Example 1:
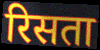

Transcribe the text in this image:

रिसता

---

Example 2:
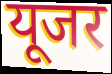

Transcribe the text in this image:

यूजर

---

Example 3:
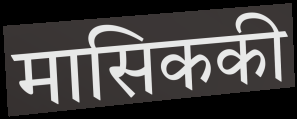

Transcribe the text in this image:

मासिककी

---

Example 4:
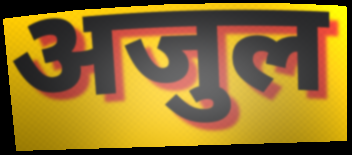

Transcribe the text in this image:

अजुल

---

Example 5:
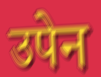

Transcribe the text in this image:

उपेन